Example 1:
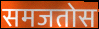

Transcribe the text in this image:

समजतोस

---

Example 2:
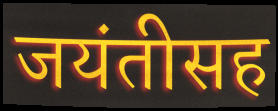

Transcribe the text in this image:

जयंतीसह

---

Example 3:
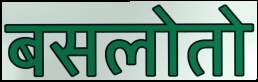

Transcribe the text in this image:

बसलोतो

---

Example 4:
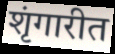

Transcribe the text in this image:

शृंगारीत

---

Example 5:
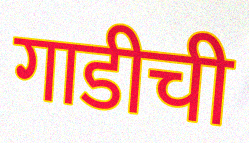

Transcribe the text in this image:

गाडीची